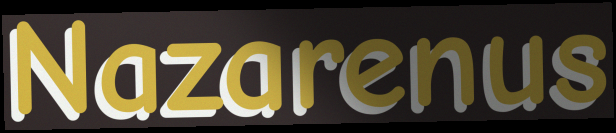
Nazarenus